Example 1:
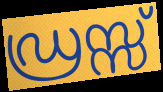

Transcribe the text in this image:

ഡ്രസ്സ്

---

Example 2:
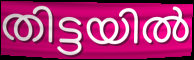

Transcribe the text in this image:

തിട്ടയിൽ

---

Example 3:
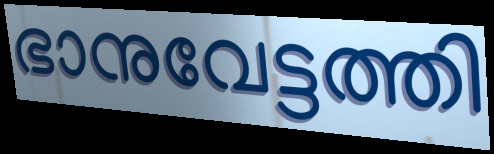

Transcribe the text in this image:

ഭാനുവേട്ടത്തി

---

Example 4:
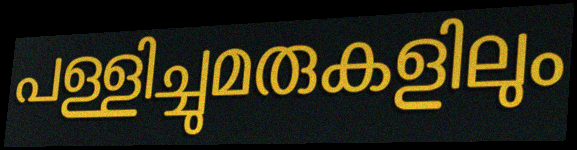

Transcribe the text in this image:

പള്ളിച്ചുമരുകളിലും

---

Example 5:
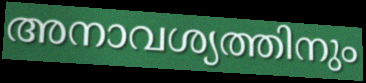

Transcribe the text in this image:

അനാവശ്യത്തിനും